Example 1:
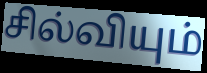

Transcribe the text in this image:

சில்வியும்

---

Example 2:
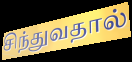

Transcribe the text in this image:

சிந்துவதால்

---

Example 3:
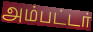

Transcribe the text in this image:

அம்பட்டர்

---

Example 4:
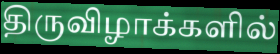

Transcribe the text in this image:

திருவிழாக்களில்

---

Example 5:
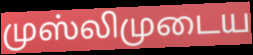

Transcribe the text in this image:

முஸ்லிமுடைய